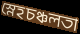
স্নেহচঞ্চলতা